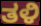
ತಳಿ